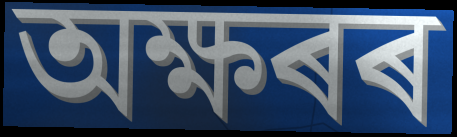
অক্ষৰৰ